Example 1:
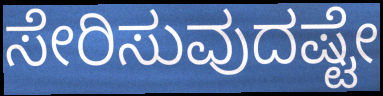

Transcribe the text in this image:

ಸೇರಿಸುವುದಷ್ಟೇ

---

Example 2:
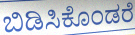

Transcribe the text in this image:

ಬಿಡಿಸಿಕೊಂಡರೆ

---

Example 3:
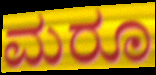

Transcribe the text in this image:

ಮರೂ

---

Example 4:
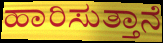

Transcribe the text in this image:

ಹಾರಿಸುತ್ತಾನೆ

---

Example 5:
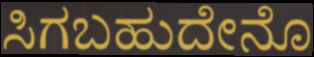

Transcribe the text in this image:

ಸಿಗಬಹುದೇನೊ